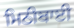
ਮਿਠੀਬਾਈ